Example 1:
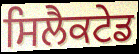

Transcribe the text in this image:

ਸਿਲੈਕਟੇਡ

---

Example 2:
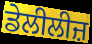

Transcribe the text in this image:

ਡੇਲੀਲੀਜ਼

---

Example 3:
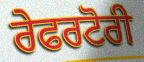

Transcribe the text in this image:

ਰੇਫਰਟੋਰੀ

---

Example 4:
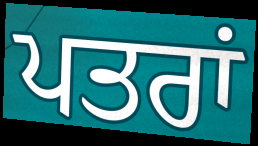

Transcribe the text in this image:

ਪਤਰਾਂ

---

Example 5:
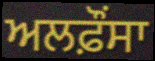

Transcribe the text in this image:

ਅਲਫ਼ੌਂਸਾ